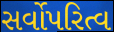
સર્વોપરિત્વ